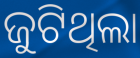
ଜୁଟିଥିଲା